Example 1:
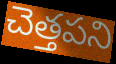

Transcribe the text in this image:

చెత్తపని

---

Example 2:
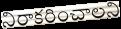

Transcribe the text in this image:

నిరాకరించాలని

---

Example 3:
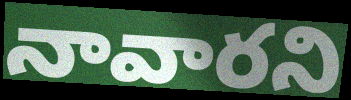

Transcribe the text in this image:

నావారని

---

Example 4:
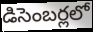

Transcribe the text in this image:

డిసెంబర్లలో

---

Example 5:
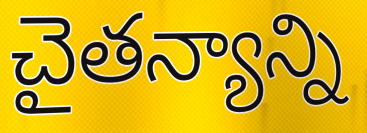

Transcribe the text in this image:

చైతన్యాన్ని